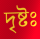
দৃষ্টঃ